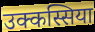
उक्कस्सिया